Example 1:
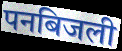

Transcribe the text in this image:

पनबिजली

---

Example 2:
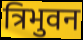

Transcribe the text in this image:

त्रिभुवन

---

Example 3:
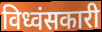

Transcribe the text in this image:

विध्वंसकारी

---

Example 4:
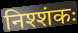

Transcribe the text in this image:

निश्शंकः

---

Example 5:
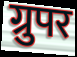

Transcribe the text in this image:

ग्रुपर